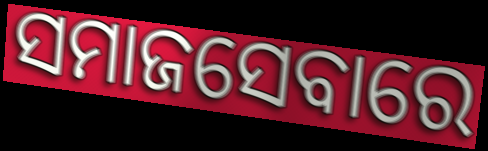
ସମାଜସେବାରେ